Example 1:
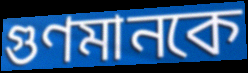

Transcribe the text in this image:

গুণমানকে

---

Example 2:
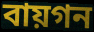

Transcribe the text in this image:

বায়গন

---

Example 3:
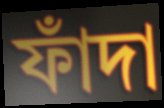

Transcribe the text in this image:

ফাঁদা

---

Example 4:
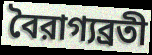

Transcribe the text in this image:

বৈরাগ্যব্রতী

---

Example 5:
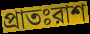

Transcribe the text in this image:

প্রাতঃরাশ